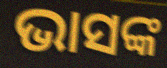
ଭାସଙ୍କ